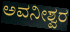
ಅವನೀಶ್ವರ